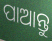
ପାଆନ୍ତୁ